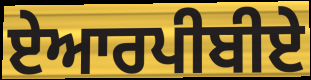
ਏਆਰਪੀਬੀਏ